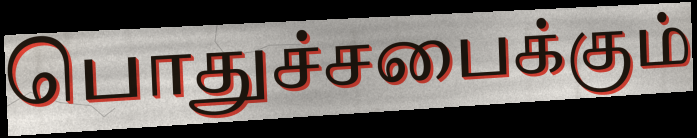
பொதுச்சபைக்கும்